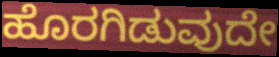
ಹೊರಗಿಡುವುದೇ